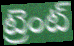
ట్రెంట్